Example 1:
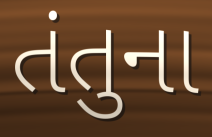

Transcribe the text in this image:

તંતુના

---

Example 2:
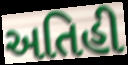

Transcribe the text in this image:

અતિહી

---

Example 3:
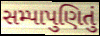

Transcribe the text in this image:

સમ્પાપુણિતું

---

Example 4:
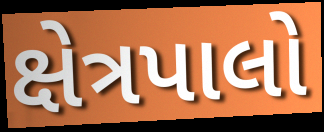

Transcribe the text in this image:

ક્ષેત્રપાલો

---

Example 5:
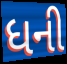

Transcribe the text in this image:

ધની